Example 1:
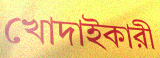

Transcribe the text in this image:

খোদাইকারী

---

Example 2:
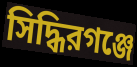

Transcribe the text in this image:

সিদ্ধিরগঞ্জে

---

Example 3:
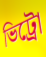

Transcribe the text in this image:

ভিট্রো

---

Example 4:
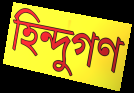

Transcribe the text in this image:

হিন্দুগণ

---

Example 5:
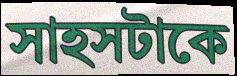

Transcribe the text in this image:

সাহসটাকে